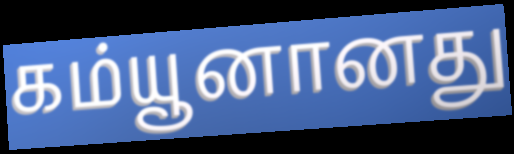
கம்யூனானது